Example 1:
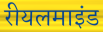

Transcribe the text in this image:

रीयलमाइंड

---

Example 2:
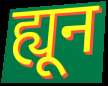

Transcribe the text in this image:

ह्यून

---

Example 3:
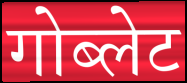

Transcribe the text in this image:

गोब्लेट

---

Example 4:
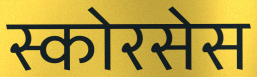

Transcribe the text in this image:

स्कोरसेस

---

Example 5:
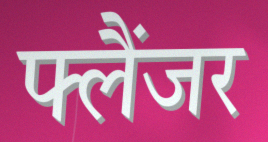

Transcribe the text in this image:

फ्लैंजर